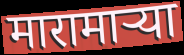
मारामाऱ्या